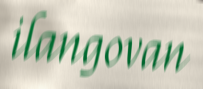
ilangovan